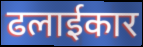
ढलाईकार